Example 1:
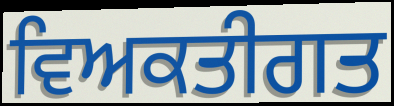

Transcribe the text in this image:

ਵਿਅਕਤੀਗਤ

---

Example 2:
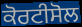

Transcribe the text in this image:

ਕੋਰਟੀਸੋਲ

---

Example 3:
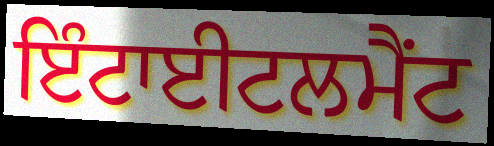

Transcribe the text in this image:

ਇੰਟਾਈਟਲਮੈਂਟ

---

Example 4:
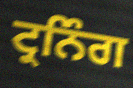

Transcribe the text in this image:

ਟ੍ਰਨਿੰਗ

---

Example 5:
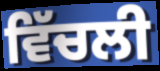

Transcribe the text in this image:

ਵਿੱਚਲੀ